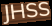
JHSS